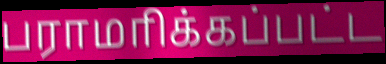
பராமரிக்கப்பட்ட